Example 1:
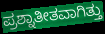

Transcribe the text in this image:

ಪ್ರಶ್ನಾತೀತವಾಗಿತ್ತು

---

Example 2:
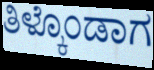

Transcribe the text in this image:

ತಿಳ್ಕೊಂಡಾಗ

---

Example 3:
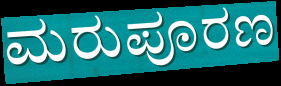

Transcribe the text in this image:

ಮರುಪೂರಣ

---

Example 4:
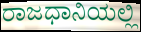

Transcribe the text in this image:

ರಾಜಧಾನಿಯಲ್ಲಿ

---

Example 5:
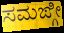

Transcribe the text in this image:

ಸಮಙ್ಗೀ